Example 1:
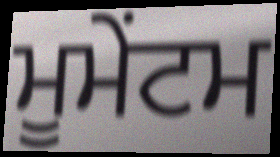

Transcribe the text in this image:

ਮੂਮੇਂਟਮ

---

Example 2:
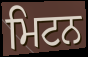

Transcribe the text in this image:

ਮਿਟਨ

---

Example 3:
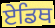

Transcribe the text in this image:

ਏਡਿਥ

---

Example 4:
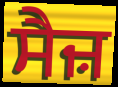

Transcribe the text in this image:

ਸੈਜ਼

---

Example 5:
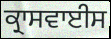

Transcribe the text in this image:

ਕ੍ਰਾਸਵਾਈਸ